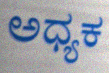
ಅಧ್ಯಕ